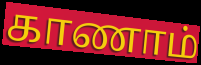
காணாம்